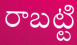
రాబట్టి